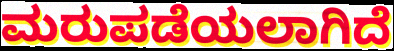
ಮರುಪಡೆಯಲಾಗಿದೆ